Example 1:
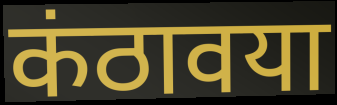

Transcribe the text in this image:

कंठावया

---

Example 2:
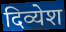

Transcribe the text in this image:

दिव्येश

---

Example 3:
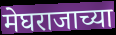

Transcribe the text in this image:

मेघराजाच्या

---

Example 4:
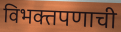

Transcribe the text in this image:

विभक्तपणाची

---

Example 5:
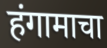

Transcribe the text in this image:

हंगामाचा